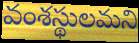
వంశస్థులమని